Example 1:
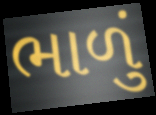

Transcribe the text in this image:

ભાળું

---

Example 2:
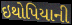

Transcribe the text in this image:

ઇથોપિયાની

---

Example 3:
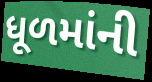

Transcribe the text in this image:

ધૂળમાંની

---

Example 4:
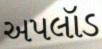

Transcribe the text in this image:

અપલૉડ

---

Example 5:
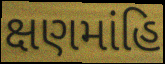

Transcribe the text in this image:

ક્ષણમાંહિ